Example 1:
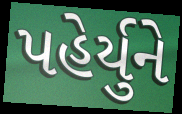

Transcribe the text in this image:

પહેર્યુને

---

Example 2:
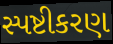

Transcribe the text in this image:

સ્પષ્ટીકરણ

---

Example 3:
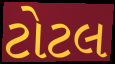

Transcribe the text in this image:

ટોટલ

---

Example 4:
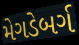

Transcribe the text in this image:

મેગડેબર્ગ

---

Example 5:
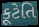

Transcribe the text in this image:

કૂટેતિ